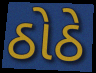
ઠોઠે